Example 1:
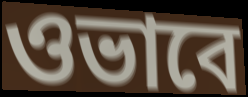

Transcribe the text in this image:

ওভাবে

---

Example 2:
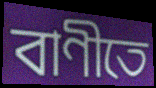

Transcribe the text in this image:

বাণীতে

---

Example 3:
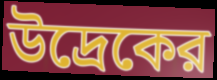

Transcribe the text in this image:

উদ্রেকের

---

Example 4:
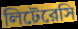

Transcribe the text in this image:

লিটেরেসি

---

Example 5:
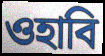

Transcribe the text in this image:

ওহাবি